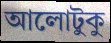
আলোটুকু